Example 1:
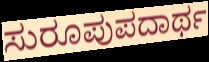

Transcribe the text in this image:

ಸುರೂಪುಪದಾರ್ಥ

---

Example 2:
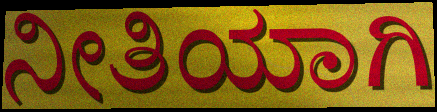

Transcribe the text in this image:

ನೀತಿಯಾಗಿ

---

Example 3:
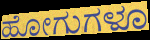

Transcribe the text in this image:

ಹೋಗುಗಳೂ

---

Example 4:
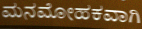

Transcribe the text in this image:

ಮನಮೋಹಕವಾಗಿ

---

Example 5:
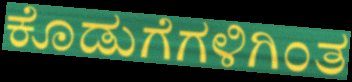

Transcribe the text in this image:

ಕೊಡುಗೆಗಳಿಗಿಂತ